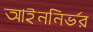
আইননির্ভর